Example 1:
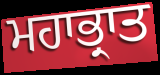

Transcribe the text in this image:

ਮਹਾਭ੍ਰਾਤ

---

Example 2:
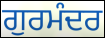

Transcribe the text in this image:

ਗੁਰਮੰਦਰ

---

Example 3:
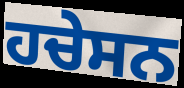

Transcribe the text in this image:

ਹਚੇਸਨ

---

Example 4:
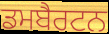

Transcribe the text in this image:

ਡਮਬੈਰਟਨ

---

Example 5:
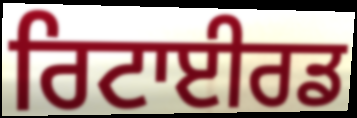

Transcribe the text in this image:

ਰਿਟਾਈਰਡ